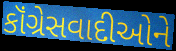
કૉંગ્રેસવાદીઓને